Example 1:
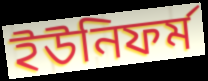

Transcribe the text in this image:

ইউনিফৰ্ম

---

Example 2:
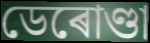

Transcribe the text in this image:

ডেৰোণ্ডা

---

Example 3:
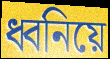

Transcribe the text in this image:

ধ্বনিয়ে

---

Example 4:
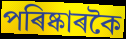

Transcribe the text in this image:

পৰিষ্কাৰকৈ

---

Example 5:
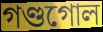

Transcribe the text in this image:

গণ্ডগোল